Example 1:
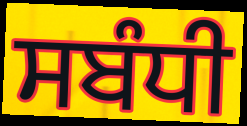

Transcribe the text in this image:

ਸਬੰਧੀ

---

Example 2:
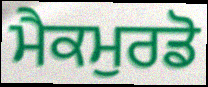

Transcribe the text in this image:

ਮੈਕਮੁਰਡੋ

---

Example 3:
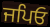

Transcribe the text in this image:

ਜਪਿਓ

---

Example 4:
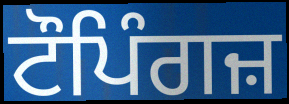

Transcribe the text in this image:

ਟੌਪਿੰਗਜ਼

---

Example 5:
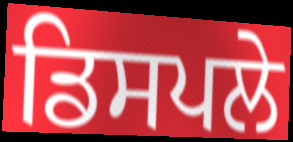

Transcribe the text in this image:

ਡਿਸਪਲੇ